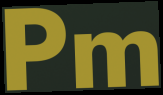
Pm